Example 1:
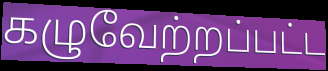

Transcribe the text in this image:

கழுவேற்றப்பட்ட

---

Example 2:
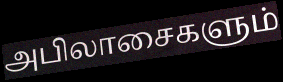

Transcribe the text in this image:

அபிலாசைகளும்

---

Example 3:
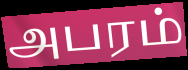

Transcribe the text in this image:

அபரம்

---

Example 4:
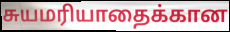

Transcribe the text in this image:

சுயமரியாதைக்கான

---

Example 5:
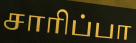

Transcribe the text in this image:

சாரிப்பா